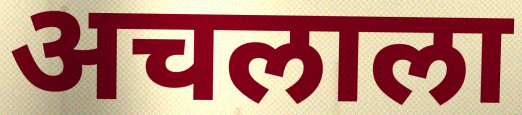
अचलाला